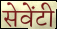
सेवेंटी